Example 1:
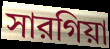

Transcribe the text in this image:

সারগিয়া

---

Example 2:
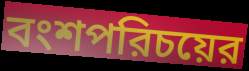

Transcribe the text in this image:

বংশপরিচয়ের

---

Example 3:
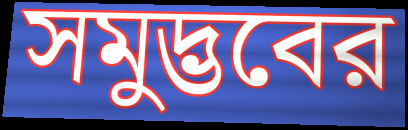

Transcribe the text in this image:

সমুদ্ভবের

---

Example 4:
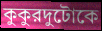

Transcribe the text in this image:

কুকুরদুটোকে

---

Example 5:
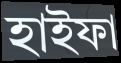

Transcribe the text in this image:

হাইফা